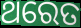
ଥରେତ